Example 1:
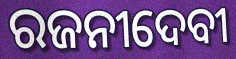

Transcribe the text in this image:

ରଜନୀଦେବୀ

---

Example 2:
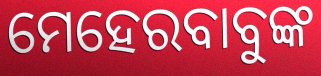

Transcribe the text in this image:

ମେହେରବାବୁଙ୍କ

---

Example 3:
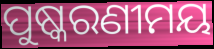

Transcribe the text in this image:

ପୁଷ୍କରଣୀମୟ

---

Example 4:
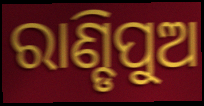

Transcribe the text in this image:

ରାଣ୍ଡିପୁଅ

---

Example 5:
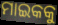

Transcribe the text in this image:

ମାଇକକୁ